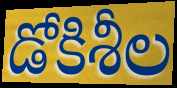
డోకిశీల